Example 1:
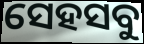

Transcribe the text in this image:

ସେହସବୁ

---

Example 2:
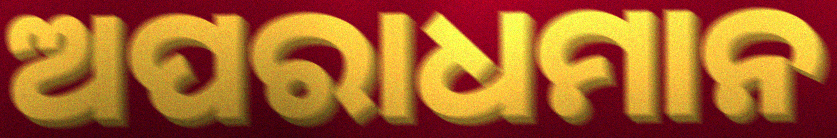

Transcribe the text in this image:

ଅପରାଧମାନ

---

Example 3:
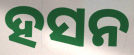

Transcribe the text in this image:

ହସନ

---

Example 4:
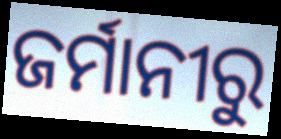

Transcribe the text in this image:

ଜର୍ମାନୀରୁ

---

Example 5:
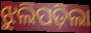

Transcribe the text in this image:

ଝୁଲିପଡ଼ିଲା